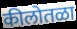
कीलोतळा